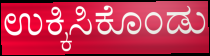
ಉಕ್ಕಿಸಿಕೊಂಡು